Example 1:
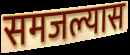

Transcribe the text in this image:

समजल्यास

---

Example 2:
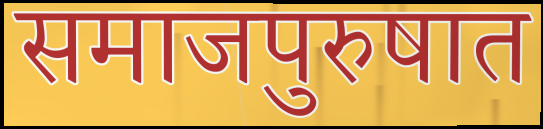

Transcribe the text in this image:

समाजपुरुषात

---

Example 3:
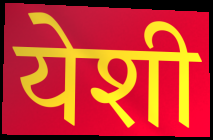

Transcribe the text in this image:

येशी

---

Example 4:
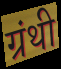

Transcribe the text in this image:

ग्रंथी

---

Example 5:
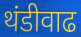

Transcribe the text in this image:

थंडीवाढ